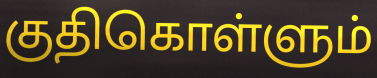
குதிகொள்ளும்